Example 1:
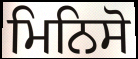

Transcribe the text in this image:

ਮਿਨਿਸੋ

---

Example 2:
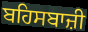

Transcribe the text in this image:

ਬਹਿਸਬਾਜ਼ੀ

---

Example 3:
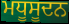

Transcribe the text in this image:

ਮਧੂਸੂਦਨ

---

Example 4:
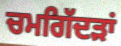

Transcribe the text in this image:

ਚਮਗਿੱਦੜਾਂ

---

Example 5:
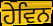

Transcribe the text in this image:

ਹੇਵਿਨ